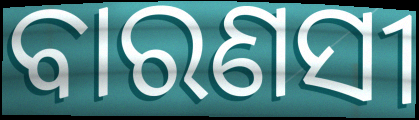
ବାରଣସୀ